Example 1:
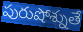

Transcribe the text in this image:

పురుషోశ్నుతే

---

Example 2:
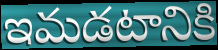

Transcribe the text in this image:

ఇమడటానికి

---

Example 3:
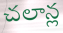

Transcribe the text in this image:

చలాన్ల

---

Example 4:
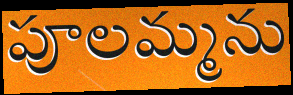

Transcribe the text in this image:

పూలమ్మను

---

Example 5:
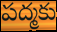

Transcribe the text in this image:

పద్మకు